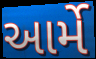
આર્મે